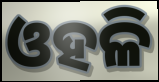
ଓହଳି